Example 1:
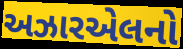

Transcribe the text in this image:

અઝારએલનો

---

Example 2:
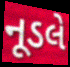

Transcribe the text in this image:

નૂડલે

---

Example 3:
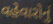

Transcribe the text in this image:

વહેવારોનું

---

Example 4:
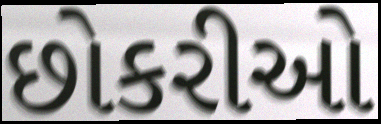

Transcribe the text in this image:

છોકરીઓ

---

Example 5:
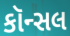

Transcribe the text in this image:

કૉન્સલ